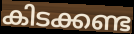
കിടക്കണ്ട